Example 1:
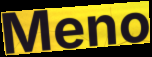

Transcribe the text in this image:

Meno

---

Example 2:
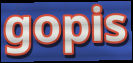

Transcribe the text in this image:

gopis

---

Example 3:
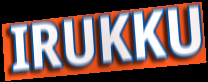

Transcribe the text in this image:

IRUKKU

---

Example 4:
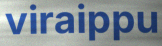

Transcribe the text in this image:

viraippu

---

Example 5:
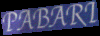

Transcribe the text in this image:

PABARI